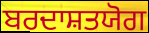
ਬਰਦਾਸ਼ਤਯੋਗ